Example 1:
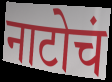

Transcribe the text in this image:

नाटोचं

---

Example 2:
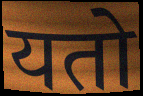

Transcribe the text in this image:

यतो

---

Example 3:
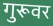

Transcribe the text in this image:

गुरूवर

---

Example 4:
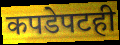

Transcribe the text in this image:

कपडेपटही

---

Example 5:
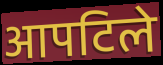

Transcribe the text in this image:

आपटिले